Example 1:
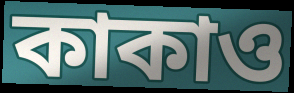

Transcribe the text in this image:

কাকাও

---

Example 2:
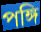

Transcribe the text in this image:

পঙ্গি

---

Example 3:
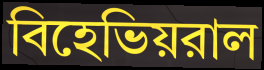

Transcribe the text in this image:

বিহেভিয়রাল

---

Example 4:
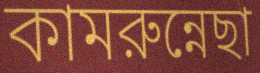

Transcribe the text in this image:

কামরুন্নেছা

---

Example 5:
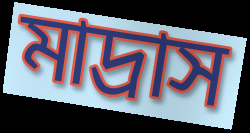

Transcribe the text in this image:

মাদ্রাস